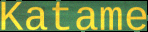
Katame